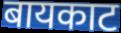
बायकाट